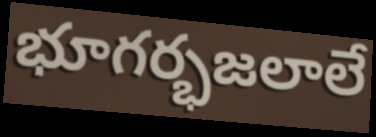
భూగర్భజలాలే